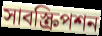
সাবস্ক্রিপশন